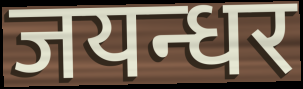
जयन्धर